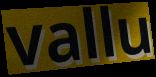
vallu